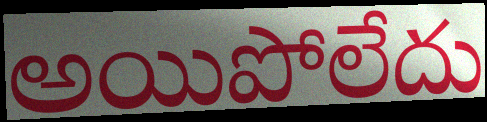
అయిపోలేదు